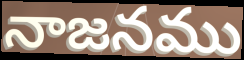
నాజనము